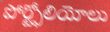
పోర్ట్ఫోలియోలు